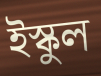
ইস্কুল